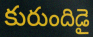
కురుందిడై